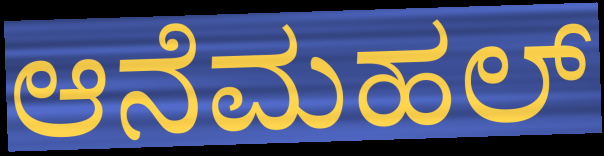
ಆನೆಮಹಲ್